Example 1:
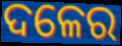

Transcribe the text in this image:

ଦଳେର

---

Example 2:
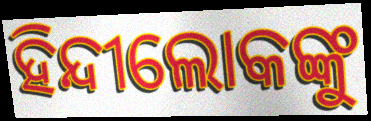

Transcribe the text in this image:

ହିନ୍ଦୀଲୋକଙ୍କୁ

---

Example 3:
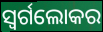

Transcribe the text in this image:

ସ୍ୱର୍ଗଲୋକର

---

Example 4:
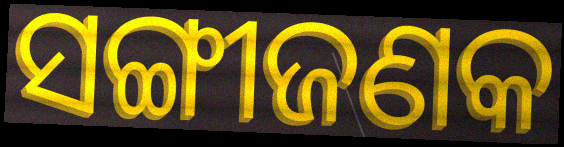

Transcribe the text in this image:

ସଙ୍ଗୀଜଣକ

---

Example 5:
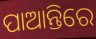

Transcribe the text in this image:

ପାଆନ୍ତିରେ